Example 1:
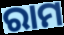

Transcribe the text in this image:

ରାମ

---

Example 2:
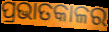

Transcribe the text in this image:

ପ୍ରଭାତକାଳର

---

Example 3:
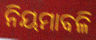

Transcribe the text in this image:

ନିୟମାବଳି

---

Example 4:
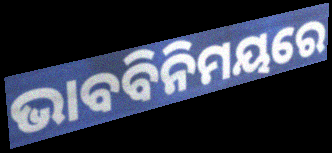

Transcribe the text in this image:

ଭାବବିନିମୟରେ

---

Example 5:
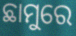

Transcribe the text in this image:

ଛାମୁରେ